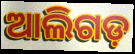
ଆଲିଗଡ଼